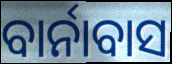
ବାର୍ନାବାସ